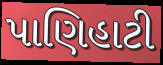
પાણિહાટી